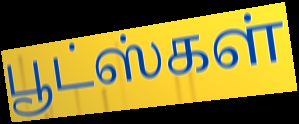
பூட்ஸ்கள்